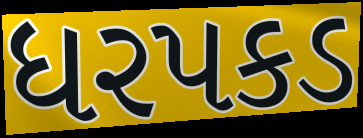
ધરપકડ